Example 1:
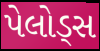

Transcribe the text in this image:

પેલોડ્સ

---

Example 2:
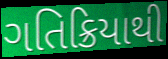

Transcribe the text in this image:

ગતિક્રિયાથી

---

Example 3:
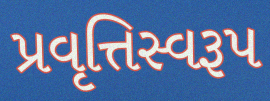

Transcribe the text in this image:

પ્રવૃત્તિસ્વરૂપ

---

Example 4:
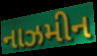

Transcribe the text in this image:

નાઝમીન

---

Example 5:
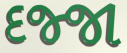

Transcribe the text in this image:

દજ્જા